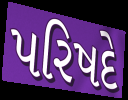
પરિષદે